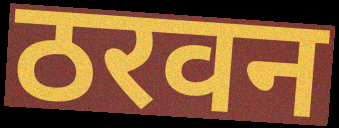
ठरवन